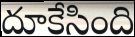
దూకేసింది